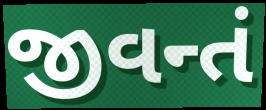
જીવન્તં